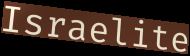
Israelite